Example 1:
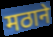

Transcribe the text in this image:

मठाने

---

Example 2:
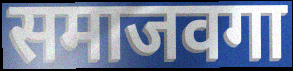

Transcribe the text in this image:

समाजवगा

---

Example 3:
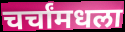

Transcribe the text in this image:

चर्चांमधला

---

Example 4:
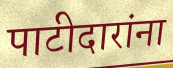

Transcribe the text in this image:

पाटीदारांना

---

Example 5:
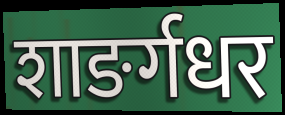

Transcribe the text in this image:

शाङर्गधर